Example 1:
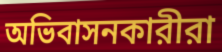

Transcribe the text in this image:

অভিবাসনকারীরা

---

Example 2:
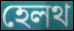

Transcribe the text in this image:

হেলথ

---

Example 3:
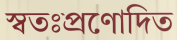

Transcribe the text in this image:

স্বতঃপ্রণোদিত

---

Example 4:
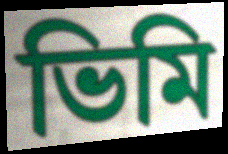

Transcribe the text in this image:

ভিমি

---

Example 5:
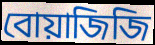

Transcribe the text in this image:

বোয়াজিজি